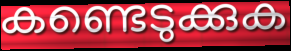
കണ്ടെടുക്കുക